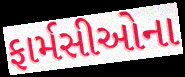
ફાર્મસીઓના